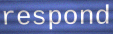
respond